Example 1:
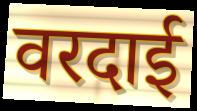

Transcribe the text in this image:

वरदाई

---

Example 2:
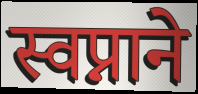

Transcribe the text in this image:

स्वप्नाने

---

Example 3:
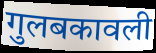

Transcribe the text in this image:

गुलबकावली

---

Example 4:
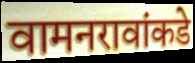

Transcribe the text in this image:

वामनरावांकडे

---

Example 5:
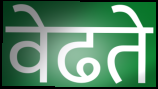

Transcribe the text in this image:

वेढते